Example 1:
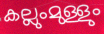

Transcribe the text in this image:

കല്ലുംമുള്ളും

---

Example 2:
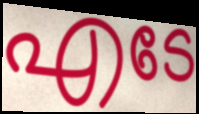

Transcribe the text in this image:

എടേ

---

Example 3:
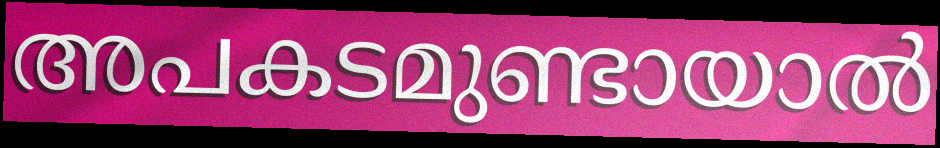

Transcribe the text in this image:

അപകടമുണ്ടായാൽ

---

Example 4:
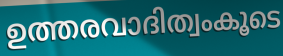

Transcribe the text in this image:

ഉത്തരവാദിത്വംകൂടെ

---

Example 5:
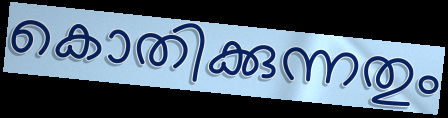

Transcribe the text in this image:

കൊതിക്കുന്നതും